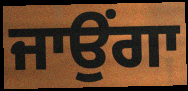
ਜਾਉਂਗਾ